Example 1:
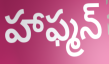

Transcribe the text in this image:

హాఫ్మన్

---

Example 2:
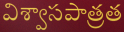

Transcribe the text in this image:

విశ్వాసపాత్రత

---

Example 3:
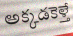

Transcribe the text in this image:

అక్కడకెళ్తే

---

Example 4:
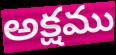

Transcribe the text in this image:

అక్షము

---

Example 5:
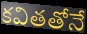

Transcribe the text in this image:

కవితతోనే